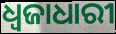
ଧ୍ଵଜାଧାରୀ